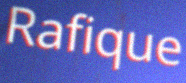
Rafique